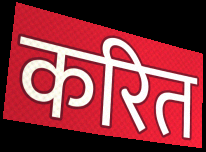
करित